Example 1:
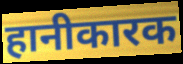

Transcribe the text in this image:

हानीकारक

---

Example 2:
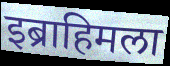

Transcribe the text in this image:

इब्राहिमला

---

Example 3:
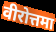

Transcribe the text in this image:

वीरोत्तमा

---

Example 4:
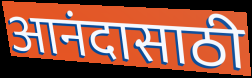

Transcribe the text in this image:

आनंदासाठी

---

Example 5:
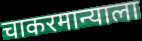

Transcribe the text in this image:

चाकरमान्याला